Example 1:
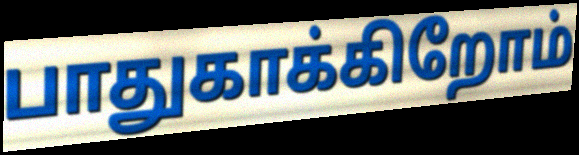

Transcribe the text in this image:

பாதுகாக்கிறோம்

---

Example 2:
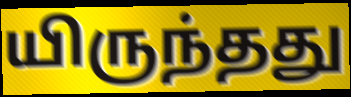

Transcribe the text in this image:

யிருந்தது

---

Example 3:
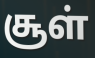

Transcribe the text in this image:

சூள்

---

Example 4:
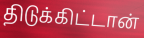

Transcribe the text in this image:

திடுக்கிட்டான்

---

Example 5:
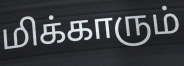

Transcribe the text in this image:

மிக்காரும்